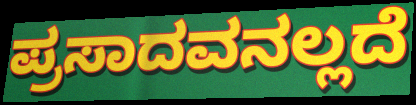
ಪ್ರಸಾದವನಲ್ಲದೆ